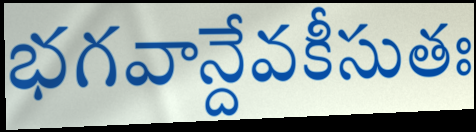
భగవాన్దేవకీసుతః